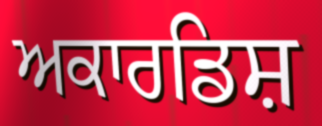
ਅਕਾਰਡਿਸ਼